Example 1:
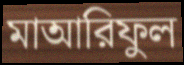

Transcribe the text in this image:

মাআরিফুল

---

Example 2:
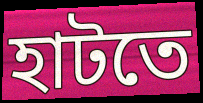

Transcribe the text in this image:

হাটতে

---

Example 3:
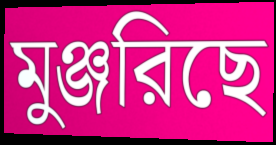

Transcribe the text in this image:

মুঞ্জরিছে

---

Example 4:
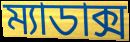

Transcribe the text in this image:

ম্যাডাক্স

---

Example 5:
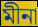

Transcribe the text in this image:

মীনা